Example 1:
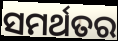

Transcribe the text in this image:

ସମର୍ଥତର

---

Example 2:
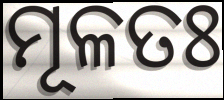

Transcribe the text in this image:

ମୂଳତଃ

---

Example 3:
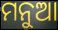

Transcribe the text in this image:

ମନୁଆ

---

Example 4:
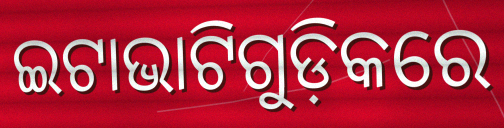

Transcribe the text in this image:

ଇଟାଭାଟିଗୁଡ଼ିକରେ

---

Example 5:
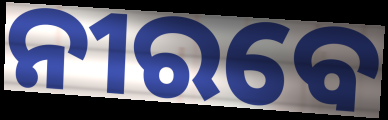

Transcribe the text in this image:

ନୀରବେ